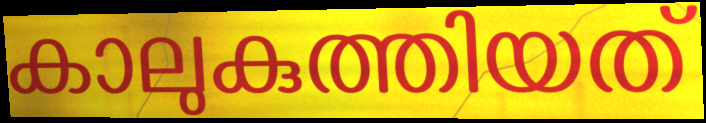
കാലുകുത്തിയത്